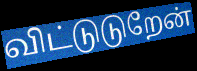
விட்டுடுறேன்